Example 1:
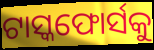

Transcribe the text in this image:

ଟାସ୍କଫୋର୍ସକୁ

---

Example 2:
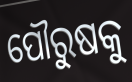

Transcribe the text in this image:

ପୌରୁଷକୁ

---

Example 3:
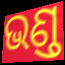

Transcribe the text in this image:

ଭଣ୍ଡ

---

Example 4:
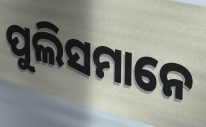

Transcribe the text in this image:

ପୁଲିସମାନେ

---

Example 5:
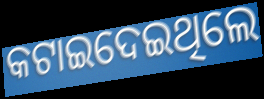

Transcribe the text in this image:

କଟାଇଦେଇଥିଲେ